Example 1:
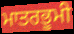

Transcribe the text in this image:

ਮਾਤਰਭੂਮੀ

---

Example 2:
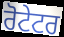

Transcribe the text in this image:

ਰੋਟੇਟਰ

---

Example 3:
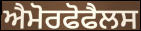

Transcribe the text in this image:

ਐਮੋਰਫੋਫੈਲਸ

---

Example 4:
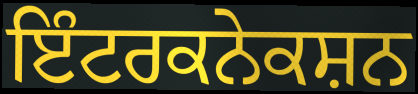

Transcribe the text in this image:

ਇੰਟਰਕਨੇਕਸ਼ਨ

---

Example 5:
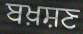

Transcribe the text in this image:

ਬਖ਼ਸ਼ਣ